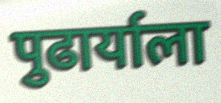
पुढार्याला